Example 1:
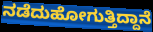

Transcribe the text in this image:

ನಡೆದುಹೋಗುತ್ತಿದ್ದಾನೆ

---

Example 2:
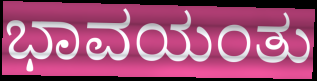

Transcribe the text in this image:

ಭಾವಯಂತು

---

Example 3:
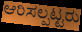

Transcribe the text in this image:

ಆರಿಸಲ್ಪಟ್ಟರು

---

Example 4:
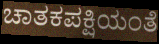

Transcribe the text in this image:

ಚಾತಕಪಕ್ಷಿಯಂತೆ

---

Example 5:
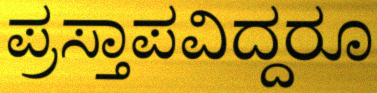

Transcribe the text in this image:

ಪ್ರಸ್ತಾಪವಿದ್ದರೂ